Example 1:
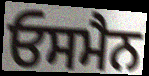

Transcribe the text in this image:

ਓਸਮੈਨ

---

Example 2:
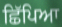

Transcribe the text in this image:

ਛਿੱਪਿਆ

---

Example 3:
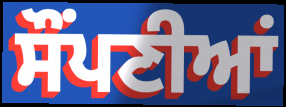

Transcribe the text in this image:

ਸੌਂਪਣੀਆਂ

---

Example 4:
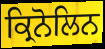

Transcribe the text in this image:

ਕ੍ਰਿਨੋਲਿਨ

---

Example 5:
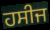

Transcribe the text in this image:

ਹਸੀਜ